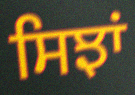
ਸਿਝਾਂ